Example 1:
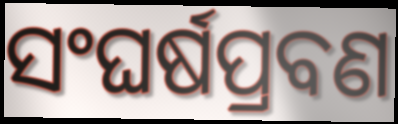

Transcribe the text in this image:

ସଂଘର୍ଷପ୍ରବଣ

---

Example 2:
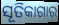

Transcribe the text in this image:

ସୂତିକାଗାର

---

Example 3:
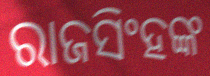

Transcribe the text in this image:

ରାଜସିଂହଙ୍କ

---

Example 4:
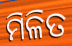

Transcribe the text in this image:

ମିଳିତ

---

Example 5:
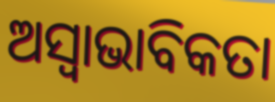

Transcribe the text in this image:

ଅସ୍ୱାଭାବିକତା